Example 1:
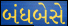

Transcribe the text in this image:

બંધબેસે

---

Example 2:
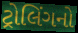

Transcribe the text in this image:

ટ્રોલિંગનો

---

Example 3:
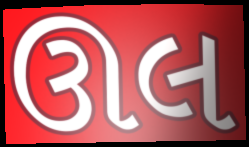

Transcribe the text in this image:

ઊલ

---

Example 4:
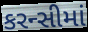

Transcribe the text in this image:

કરન્સીમાં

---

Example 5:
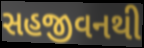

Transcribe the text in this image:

સહજીવનથી